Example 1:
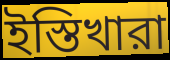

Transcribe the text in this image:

ইস্তিখারা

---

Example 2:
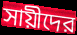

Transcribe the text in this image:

সায়ীদের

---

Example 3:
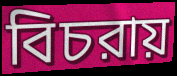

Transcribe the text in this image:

বিচরায়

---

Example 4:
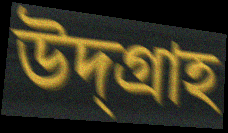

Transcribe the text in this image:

উদ্গ্রাহ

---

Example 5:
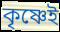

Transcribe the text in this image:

কৃষ্ণেই